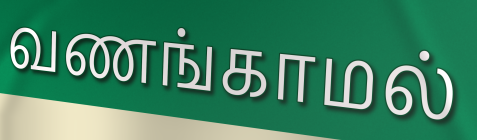
வணங்காமல்